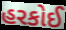
હરકોઈ